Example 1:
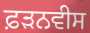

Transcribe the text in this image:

ਫ਼ੜਨਵੀਸ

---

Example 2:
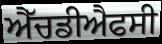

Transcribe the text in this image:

ਐੱਚਡੀਐਫਸੀ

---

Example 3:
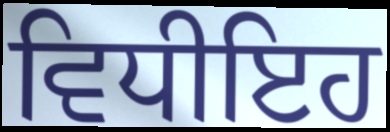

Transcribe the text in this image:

ਵਿਧੀਇਹ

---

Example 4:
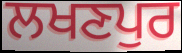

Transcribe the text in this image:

ਲਖਣਪੁਰ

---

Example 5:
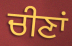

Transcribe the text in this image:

ਚੀਣਾਂ